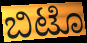
ಬಿಟೊ